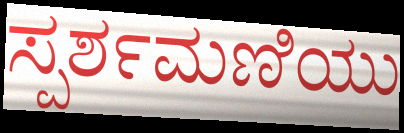
ಸ್ಪರ್ಶಮಣಿಯು